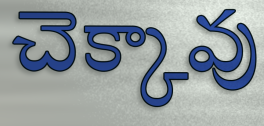
చెక్కావు